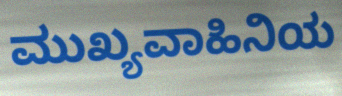
ಮುಖ್ಯವಾಹಿನಿಯ